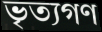
ভৃত্যগণ